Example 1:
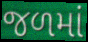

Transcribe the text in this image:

જળમાં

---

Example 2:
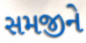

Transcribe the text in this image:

સમજીને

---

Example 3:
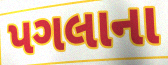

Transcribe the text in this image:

પગલાના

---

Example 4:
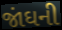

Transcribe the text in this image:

જાંઘની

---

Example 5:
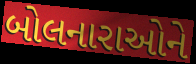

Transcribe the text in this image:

બોલનારાઓને